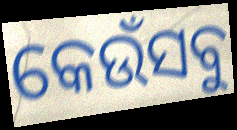
କେଉଁସବୁ